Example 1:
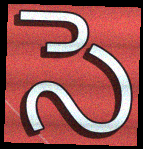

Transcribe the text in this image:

సె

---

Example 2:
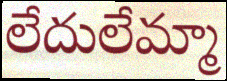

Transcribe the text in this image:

లేదులేమ్మా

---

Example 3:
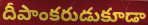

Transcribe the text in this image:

దీపాంకరుడుకూడా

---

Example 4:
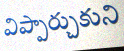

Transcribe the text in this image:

విప్పార్చుకుని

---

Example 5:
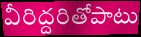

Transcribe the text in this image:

వీరిద్దరితోపాటు